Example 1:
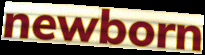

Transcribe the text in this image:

newborn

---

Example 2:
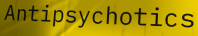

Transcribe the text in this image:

Antipsychotics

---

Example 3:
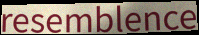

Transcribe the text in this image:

resemblence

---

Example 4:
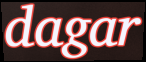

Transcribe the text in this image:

dagar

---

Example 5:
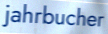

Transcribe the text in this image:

jahrbucher